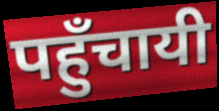
पहुँचायी